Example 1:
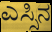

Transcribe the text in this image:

ಎಸ್ಸಿನ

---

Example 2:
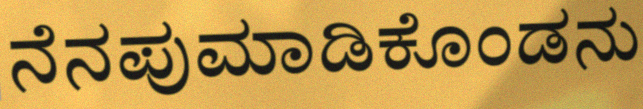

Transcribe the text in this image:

ನೆನಪುಮಾಡಿಕೊಂಡನು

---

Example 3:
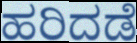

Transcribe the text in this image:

ಹರಿದಡೆ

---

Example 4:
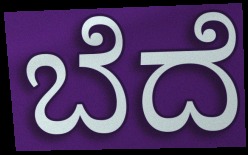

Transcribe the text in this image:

ಬೆದೆ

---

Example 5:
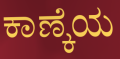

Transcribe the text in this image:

ಕಾಣ್ಕೆಯ